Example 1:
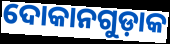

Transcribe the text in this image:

ଦୋକାନଗୁଡ଼ାକ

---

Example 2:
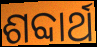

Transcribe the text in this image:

ଶବ୍ଦାର୍ଥ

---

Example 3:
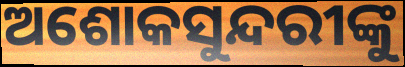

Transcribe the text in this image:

ଅଶୋକସୁନ୍ଦରୀଙ୍କୁ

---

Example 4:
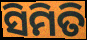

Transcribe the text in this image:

ସିମିତି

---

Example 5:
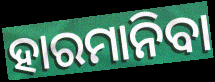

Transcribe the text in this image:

ହାରମାନିବା